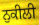
ਨੁਕੀਲੀ